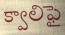
క్వాలిఫై